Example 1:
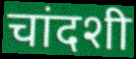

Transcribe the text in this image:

चांदशी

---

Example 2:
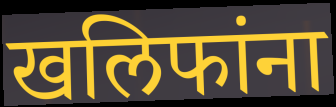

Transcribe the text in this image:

खलिफांना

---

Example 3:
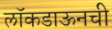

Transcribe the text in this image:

लॉकडाऊनची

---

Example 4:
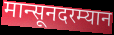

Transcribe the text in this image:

मान्सूनदरम्यान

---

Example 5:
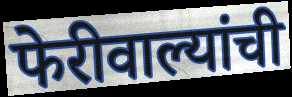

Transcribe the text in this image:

फेरीवाल्यांची